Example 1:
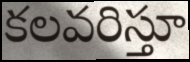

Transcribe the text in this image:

కలవరిస్తూ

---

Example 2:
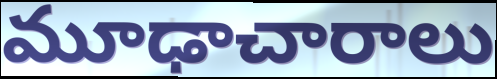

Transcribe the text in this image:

మూఢాచారాలు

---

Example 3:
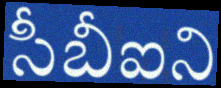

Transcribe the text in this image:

సీబీఐని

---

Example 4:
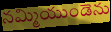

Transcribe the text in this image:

నమ్మియుండెను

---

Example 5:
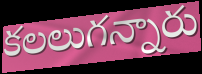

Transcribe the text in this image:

కలలుగన్నారు